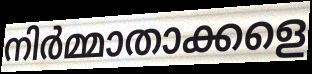
നിർമ്മാതാക്കളെ